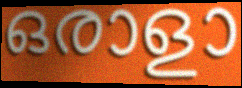
ഒരാളാ